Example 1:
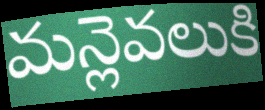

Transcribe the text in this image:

మన్లెవలుకి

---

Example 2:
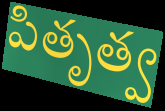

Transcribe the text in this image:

పితృత్వ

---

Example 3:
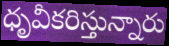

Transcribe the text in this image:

ధృవీకరిస్తున్నారు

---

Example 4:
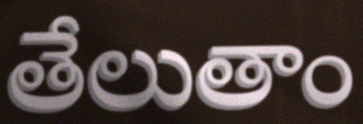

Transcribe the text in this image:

తేలుతాం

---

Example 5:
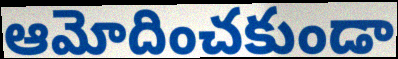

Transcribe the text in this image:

ఆమోదించకుండా